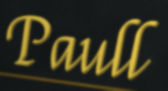
Paull